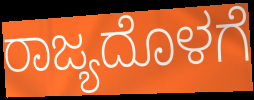
ರಾಜ್ಯದೊಳಗೆ